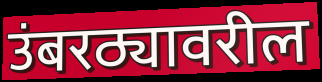
उंबरठ्यावरील